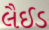
લૈઈડ